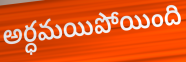
అర్ధమయిపోయింది